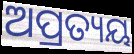
ଅପ୍ରତ୍ୟୟ